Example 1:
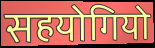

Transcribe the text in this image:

सहयोगियो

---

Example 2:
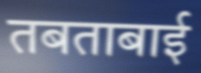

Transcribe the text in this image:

तबताबाई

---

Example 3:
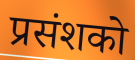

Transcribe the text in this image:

प्रसंशको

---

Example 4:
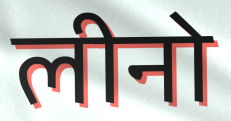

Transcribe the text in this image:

लीनो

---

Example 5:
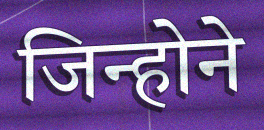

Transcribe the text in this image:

जिन्होने